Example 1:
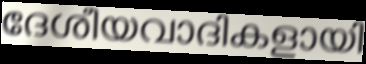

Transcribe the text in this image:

ദേശീയവാദികളായി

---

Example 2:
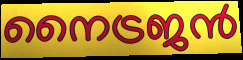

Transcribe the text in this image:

നൈട്രജൻ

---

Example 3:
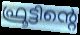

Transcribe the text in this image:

ഫ്രൂട്ടിന്റെ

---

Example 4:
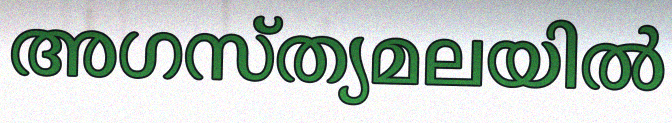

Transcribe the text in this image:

അഗസ്ത്യമലയിൽ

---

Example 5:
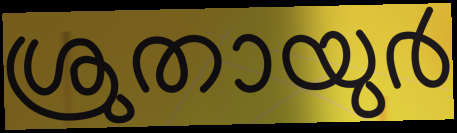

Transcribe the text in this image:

ശ്രുതായുർ